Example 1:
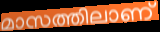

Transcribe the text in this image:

മാസത്തിലാണ്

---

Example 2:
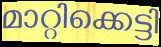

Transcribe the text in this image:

മാറ്റിക്കെട്ടി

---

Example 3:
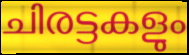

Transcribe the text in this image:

ചിരട്ടകളും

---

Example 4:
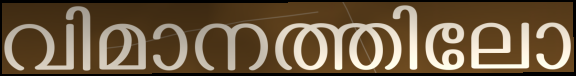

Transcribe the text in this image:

വിമാനത്തിലോ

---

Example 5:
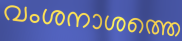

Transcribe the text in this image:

വംശനാശത്തെ